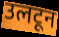
उलटून